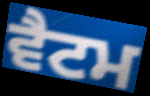
ਵੈਟਮ